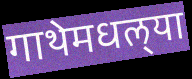
गाथेमधल्या